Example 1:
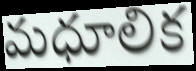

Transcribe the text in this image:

మధూలిక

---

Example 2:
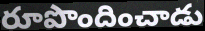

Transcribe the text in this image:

రూపొందించాడు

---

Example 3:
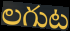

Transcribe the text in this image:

లగుట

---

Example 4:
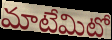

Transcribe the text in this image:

మాటేమిటో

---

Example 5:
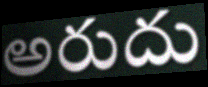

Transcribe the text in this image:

అరుదు